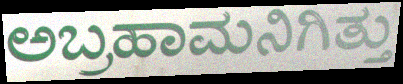
ಅಬ್ರಹಾಮನಿಗಿತ್ತು